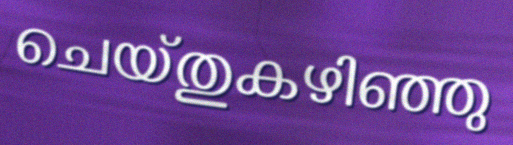
ചെയ്തുകഴിഞ്ഞു